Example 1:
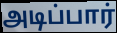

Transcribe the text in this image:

அடிப்பார்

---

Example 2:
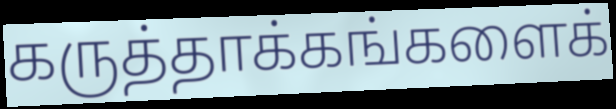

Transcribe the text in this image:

கருத்தாக்கங்களைக்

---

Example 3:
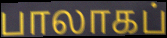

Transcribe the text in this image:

பாலாகப்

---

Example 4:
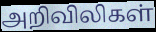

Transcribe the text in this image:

அறிவிலிகள்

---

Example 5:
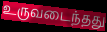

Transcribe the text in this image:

உருவடைந்தது